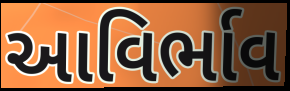
આવિર્ભાવ